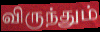
விருந்தும்